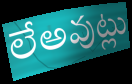
లేఅవుట్లు